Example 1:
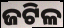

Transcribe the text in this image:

ଜଟିଳ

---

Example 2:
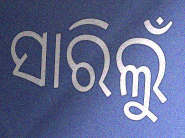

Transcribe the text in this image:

ସାରିଲୁଁ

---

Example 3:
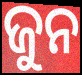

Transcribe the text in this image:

ଜୁନ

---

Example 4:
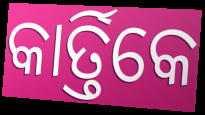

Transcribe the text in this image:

କାର୍ତ୍ତିକେ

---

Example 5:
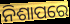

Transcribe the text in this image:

ନିଶାପରେ